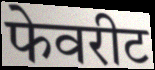
फेवरीट